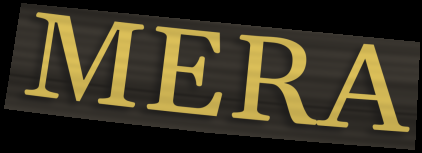
MERA